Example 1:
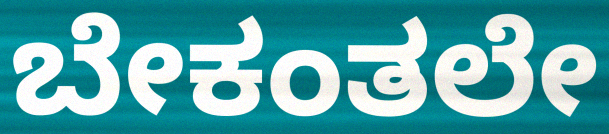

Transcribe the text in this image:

ಬೇಕಂತಲೇ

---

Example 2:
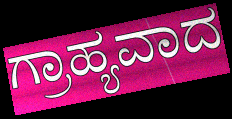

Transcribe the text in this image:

ಗ್ರಾಹ್ಯವಾದ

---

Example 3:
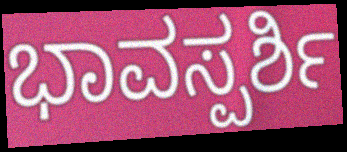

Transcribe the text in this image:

ಭಾವಸ್ಪರ್ಶಿ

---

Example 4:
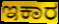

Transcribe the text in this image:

ಇಕಾರ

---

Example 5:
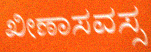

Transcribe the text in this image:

ಖೀಣಾಸವಸ್ಸ